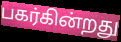
பகர்கின்றது